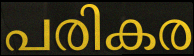
പരികര